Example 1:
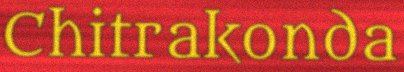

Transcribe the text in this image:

Chitrakonda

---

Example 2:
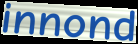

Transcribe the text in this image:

innond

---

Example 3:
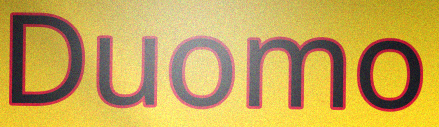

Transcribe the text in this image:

Duomo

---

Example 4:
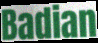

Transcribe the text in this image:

Badian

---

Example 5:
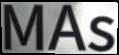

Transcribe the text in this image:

MAs